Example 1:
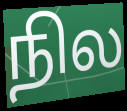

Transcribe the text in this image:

நில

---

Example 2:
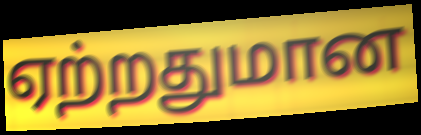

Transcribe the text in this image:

ஏற்றதுமான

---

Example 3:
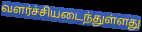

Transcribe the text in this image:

வளர்ச்சியடைந்துள்ளது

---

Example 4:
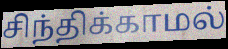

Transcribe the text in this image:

சிந்திக்காமல்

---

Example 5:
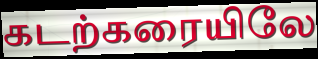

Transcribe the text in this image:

கடற்கரையிலே